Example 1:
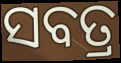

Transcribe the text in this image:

ସବତ୍ର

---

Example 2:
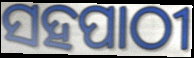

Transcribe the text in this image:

ସହପାଠୀ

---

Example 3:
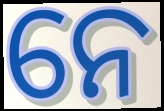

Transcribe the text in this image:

ନେ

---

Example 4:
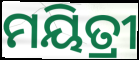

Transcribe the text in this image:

ମୟିତ୍ରୀ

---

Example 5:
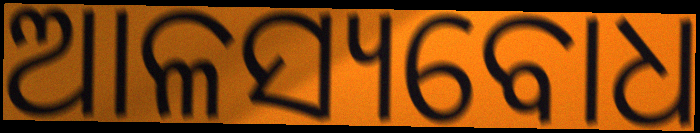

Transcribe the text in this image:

ଆଳସ୍ୟବୋଧ